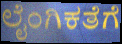
ಲೈಂಗಿಕತೆಗೆ